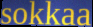
sokkaa